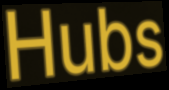
Hubs